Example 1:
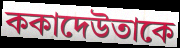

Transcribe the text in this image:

ককাদেউতাকে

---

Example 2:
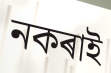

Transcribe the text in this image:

নকৰাই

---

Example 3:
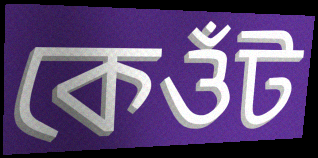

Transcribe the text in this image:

কেওঁট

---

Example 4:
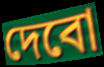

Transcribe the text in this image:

দেবো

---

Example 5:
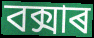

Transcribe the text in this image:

বক্সাৰ